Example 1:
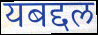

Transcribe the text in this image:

यबद्दल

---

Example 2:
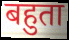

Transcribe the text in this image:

बहुता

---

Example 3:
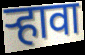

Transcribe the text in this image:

ऱ्हावा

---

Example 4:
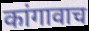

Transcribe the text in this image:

कांगावाच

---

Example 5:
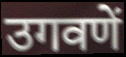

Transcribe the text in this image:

उगवणें